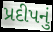
પ્રદીપનું